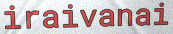
iraivanai